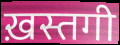
ख़स्तगी